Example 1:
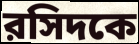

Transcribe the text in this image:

রসিদকে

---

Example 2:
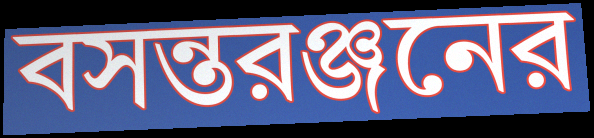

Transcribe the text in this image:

বসন্তরঞ্জনের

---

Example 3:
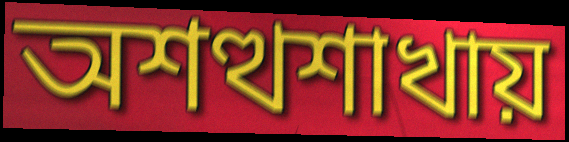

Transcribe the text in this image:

অশত্থশাখায়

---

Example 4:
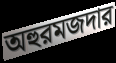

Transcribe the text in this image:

অহুরমজদার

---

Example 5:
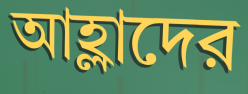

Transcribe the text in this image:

আহ্লাদের